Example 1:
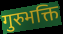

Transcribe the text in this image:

गुरुभक्ति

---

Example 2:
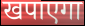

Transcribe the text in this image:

खपाएगा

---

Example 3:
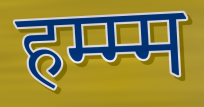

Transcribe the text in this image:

हम्म्म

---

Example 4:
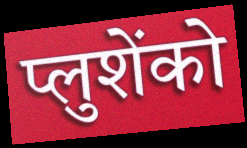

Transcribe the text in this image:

प्लुशेंको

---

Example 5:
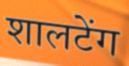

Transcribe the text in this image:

शालटेंग